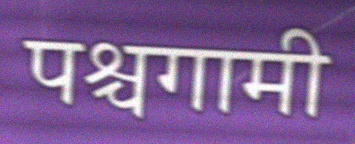
पश्चगामी